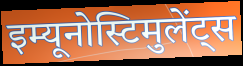
इम्यूनोस्टिमुलेंट्स